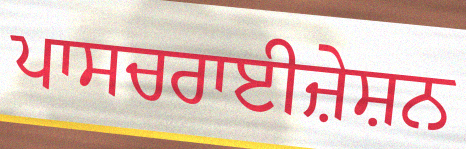
ਪਾਸਚਰਾਈਜ਼ੇਸ਼ਨ